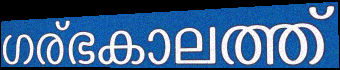
ഗര്ഭകാലത്ത്